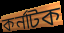
কর্নাটক